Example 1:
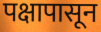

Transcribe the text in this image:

पक्षापासून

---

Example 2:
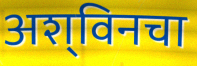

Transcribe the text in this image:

अश्विनचा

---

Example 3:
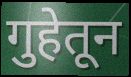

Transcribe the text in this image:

गुहेतून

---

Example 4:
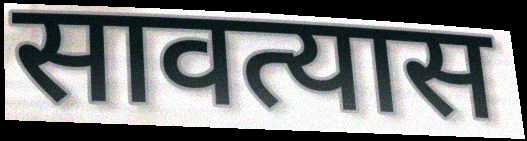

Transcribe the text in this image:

सावत्यास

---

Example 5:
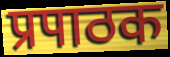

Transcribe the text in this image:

प्रपाठक